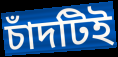
চাঁদটিই